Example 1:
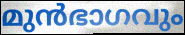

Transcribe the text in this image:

മുൻഭാഗവും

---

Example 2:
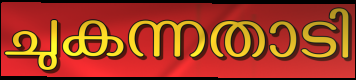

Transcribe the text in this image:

ചുകന്നതാടി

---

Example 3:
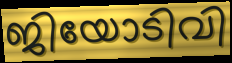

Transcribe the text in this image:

ജിയോടിവി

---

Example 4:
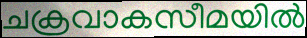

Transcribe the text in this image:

ചക്രവാകസീമയിൽ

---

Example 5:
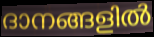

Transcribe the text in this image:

ദാനങ്ങളിൽ